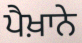
ਪੈਖ਼ਾਨੇ